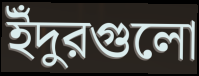
ইঁদুরগুলো